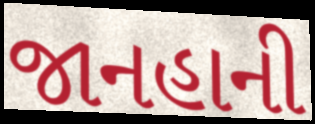
જાનહાની